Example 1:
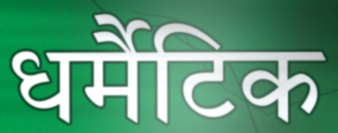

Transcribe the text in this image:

धर्मैटिक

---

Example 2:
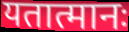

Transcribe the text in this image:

यतात्मानः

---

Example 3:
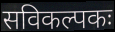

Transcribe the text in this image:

सविकल्पकः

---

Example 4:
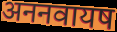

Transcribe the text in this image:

अननवायष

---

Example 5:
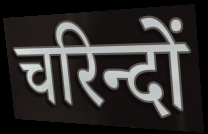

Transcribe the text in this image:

चरिन्दों